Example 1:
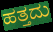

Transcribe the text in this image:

ಹತ್ತದು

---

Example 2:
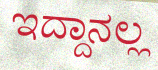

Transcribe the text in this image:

ಇದ್ದಾನಲ್ಲ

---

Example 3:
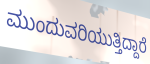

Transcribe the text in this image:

ಮುಂದುವರಿಯುತ್ತಿದ್ದಾರೆ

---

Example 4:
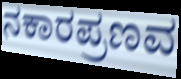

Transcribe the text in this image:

ನಕಾರಪ್ರಣವ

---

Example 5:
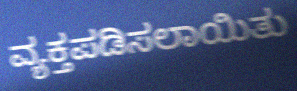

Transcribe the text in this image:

ವ್ಯಕ್ತಪಡಿಸಲಾಯಿತು